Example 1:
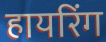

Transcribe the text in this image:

हायरिंग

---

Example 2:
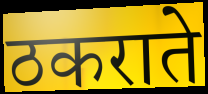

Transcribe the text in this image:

ठकराते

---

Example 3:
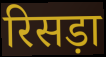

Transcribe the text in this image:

रिसड़ा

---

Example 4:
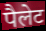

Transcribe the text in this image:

पैलेट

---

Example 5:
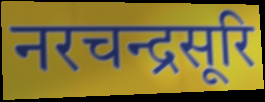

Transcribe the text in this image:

नरचन्द्रसूरि